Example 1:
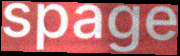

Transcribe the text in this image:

spage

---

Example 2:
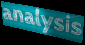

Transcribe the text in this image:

analysis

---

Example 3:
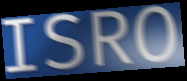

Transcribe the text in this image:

ISRO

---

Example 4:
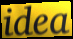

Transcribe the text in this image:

idea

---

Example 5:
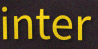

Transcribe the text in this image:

inter